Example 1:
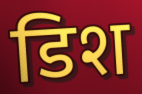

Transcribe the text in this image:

डिश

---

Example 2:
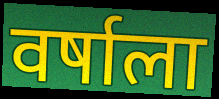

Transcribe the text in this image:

वर्षाला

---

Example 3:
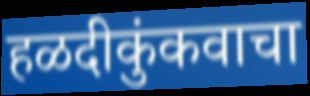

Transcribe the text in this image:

हळदीकुंकवाचा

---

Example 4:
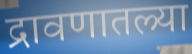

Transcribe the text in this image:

द्रावणातल्या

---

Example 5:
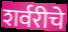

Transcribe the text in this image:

शर्वरीचे